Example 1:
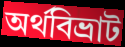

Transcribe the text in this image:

অর্থবিভ্রাট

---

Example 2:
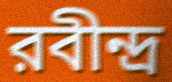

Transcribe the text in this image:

রবীন্দ্র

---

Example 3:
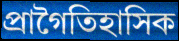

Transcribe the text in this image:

প্রাগৈতিহাসিক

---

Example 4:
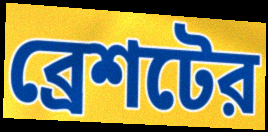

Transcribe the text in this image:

ব্রেশটের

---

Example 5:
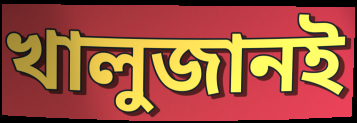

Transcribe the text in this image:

খালুজানই